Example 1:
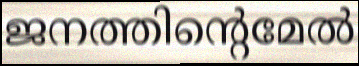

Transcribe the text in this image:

ജനത്തിന്റെമേൽ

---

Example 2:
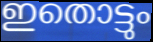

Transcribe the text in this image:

ഇതൊട്ടും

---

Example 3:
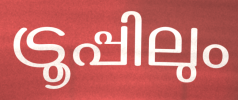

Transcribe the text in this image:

ട്രൂപ്പിലും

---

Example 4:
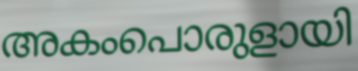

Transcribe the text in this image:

അകംപൊരുളായി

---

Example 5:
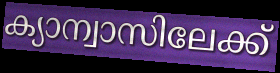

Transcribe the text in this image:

ക്യാന്വാസിലേക്ക്